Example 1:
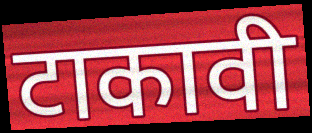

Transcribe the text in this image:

टाकावी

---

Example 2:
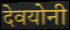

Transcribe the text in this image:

देवयोनी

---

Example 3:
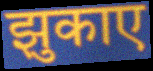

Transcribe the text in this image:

झुकाए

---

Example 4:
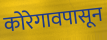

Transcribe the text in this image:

कोरेगावपासून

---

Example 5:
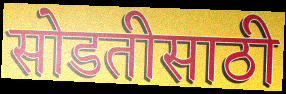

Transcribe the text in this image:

सोडतीसाठी